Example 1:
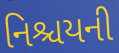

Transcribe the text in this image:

નિશ્ચયની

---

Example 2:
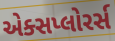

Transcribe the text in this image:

એક્સપ્લોરર્સ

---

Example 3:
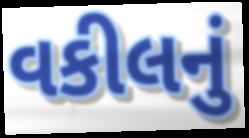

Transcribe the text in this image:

વકીલનું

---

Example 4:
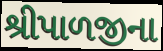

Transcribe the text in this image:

શ્રીપાળજીના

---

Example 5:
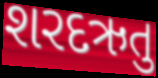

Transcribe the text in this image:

શરદઋતુ